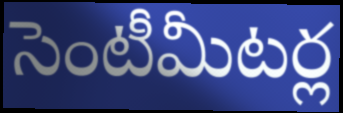
సెంటీమీటర్ల